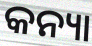
କନ୍ୟା